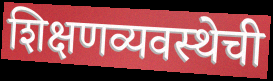
शिक्षणव्यवस्थेची